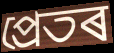
প্ৰেতৰ